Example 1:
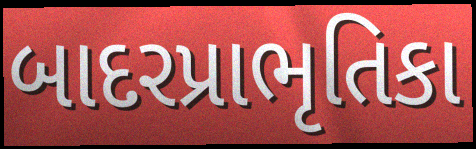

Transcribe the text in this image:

બાદરપ્રાભૃતિકા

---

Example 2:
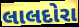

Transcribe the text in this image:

લાલદોરા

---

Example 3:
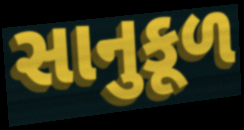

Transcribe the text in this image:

સાનુકૂળ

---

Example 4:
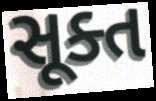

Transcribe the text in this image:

સૂક્ત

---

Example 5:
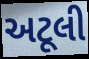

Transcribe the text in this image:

અટૂલી